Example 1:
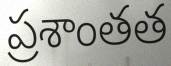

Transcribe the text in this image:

ప్రశాంతత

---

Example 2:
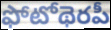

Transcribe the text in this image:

ఫోటోథెరపీ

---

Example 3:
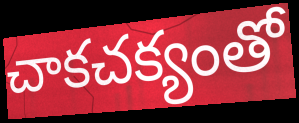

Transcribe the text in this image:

చాకచక్యంతో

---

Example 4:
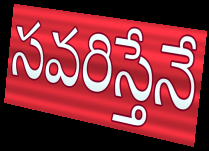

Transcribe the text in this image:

సవరిస్తేనే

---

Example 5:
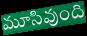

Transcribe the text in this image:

మూసివుంది